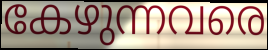
കേഴുന്നവരെ